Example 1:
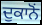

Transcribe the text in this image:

ਦੁਕਾਨੋਂ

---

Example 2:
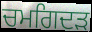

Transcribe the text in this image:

ਚਮਗਿਦੜ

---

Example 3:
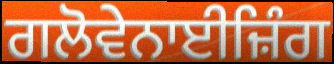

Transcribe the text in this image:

ਗਲੋਵੇਨਾਈਜ਼ਿੰਗ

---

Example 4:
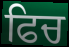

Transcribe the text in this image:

ਫਿਚ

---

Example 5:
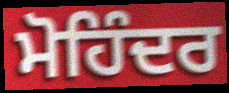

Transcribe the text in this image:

ਮੋਹਿੰਦਰ